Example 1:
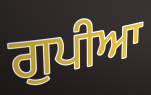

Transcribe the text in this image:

ਗੁਪੀਆ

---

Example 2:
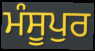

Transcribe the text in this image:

ਮੰਸੂਪੁਰ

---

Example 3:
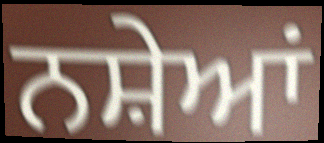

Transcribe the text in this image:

ਨਸ਼ੇਆਂ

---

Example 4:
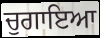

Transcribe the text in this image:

ਚੁਗਾਇਆ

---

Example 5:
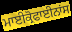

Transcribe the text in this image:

ਮਾਈਕ੍ਰੋਫਾਈਨਾਂਸ